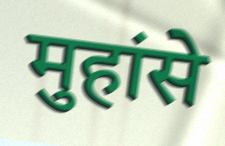
मुहांसे